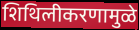
शिथिलीकरणामुळे